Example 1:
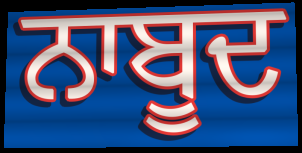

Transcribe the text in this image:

ਨਾਬੂਦ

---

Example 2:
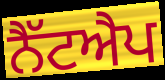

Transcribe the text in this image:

ਨੈੱਟਐਪ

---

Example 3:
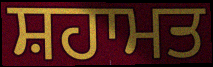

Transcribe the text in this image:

ਸ਼ਹਾਮਤ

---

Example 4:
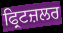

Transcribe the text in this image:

ਫ੍ਰਿਟਜ਼ਲਰ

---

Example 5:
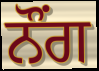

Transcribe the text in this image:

ਨੌਂਗ